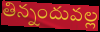
తిన్నందువల్ల